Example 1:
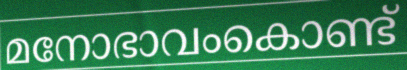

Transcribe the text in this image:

മനോഭാവംകൊണ്ട്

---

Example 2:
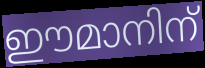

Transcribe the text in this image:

ഈമാനിന്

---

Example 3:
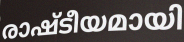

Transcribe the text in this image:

രാഷ്ടീയമായി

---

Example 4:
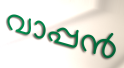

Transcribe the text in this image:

വാപ്പൻ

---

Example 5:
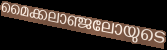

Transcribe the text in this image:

മൈക്കലാഞ്ജലോയുടെ